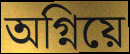
অগ্নিয়ে